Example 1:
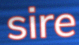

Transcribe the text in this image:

sire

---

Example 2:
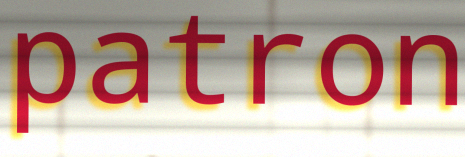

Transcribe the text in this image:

patron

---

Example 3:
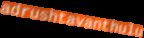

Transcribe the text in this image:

adrushtavanthulu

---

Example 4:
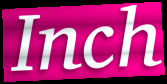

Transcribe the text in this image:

Inch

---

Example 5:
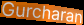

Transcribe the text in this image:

Gurcharan